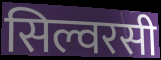
सिल्वरसी